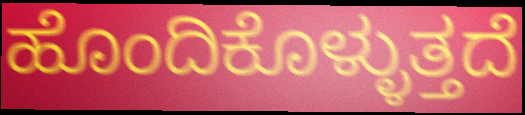
ಹೊಂದಿಕೊಳ್ಳುತ್ತದೆ